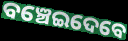
ବଞ୍ଚେଇଦେବେ